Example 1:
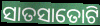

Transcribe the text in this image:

ସାତସାତୋଟି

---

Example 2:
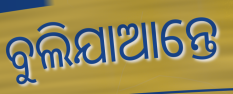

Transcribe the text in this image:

ବୁଲିଯାଆନ୍ତେ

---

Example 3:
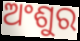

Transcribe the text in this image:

ଅଂଶୁର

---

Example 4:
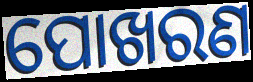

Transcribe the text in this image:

ପୋଖରଣ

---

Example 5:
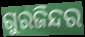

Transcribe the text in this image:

ଗୁରଜିନ୍ଦର